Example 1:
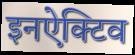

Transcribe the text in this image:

इनऐक्टिव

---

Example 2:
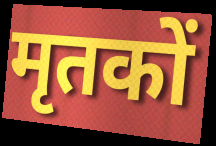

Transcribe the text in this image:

मृतकों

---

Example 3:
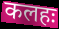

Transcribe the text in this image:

कलहः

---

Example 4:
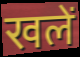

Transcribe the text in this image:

खलें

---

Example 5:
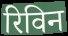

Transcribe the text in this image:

रिविन